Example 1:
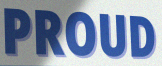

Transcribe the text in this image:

PROUD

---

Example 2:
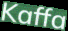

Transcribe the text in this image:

Kaffa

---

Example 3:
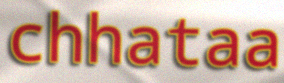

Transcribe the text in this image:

chhataa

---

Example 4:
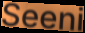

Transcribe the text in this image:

Seeni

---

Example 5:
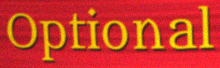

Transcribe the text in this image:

Optional